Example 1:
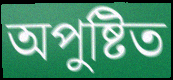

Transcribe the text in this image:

অপুষ্টিত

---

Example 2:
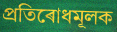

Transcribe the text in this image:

প্ৰতিৰোধমূলক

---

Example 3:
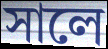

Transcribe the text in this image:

সালে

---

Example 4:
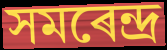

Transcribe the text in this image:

সমৰেন্দ্ৰ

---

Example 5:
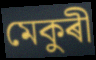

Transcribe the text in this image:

মেকুৰী